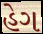
હેગ